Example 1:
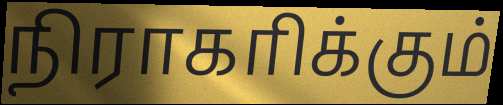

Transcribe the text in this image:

நிராகரிக்கும்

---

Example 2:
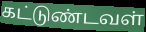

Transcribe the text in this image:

கட்டுண்டவள்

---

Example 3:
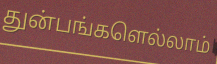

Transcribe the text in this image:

துன்பங்களெல்லாம்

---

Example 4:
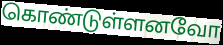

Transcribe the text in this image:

கொண்டுள்ளனவோ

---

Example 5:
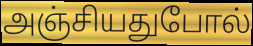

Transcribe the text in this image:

அஞ்சியதுபோல்